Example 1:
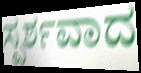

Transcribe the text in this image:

ಸ್ಪರ್ಶವಾದ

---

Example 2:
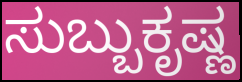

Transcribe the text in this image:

ಸುಬ್ಬುಕೃಷ್ಣ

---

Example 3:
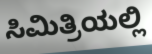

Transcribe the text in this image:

ಸಿಮಿತ್ರಿಯಲ್ಲಿ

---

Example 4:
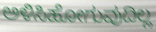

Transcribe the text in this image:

ಅಳಿಸಿಹೋಗುವುದಿಲ್ಲ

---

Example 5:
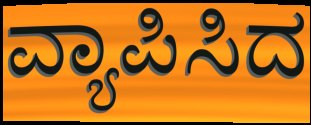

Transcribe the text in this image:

ವ್ಯಾಪಿಸಿದ